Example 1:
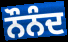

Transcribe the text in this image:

ਨੌਨੰਦ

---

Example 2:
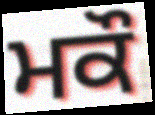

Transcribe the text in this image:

ਮਕੌ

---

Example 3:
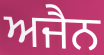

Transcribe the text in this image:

ਅਜੈਨ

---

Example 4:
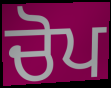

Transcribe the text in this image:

ਚੋਪ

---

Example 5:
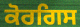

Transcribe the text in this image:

ਕੋਰਗਿਸ